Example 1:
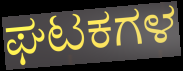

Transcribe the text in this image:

ಘಟಕಗಳ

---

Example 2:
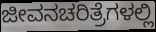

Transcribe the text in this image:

ಜೀವನಚರಿತ್ರೆಗಳಲ್ಲಿ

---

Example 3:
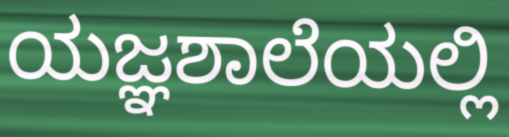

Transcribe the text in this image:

ಯಜ್ಞಶಾಲೆಯಲ್ಲಿ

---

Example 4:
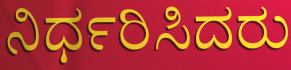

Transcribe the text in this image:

ನಿರ್ಧರಿಸಿದರು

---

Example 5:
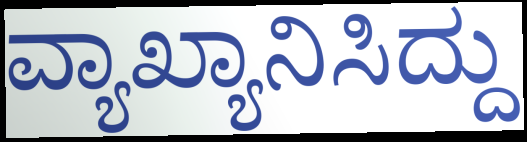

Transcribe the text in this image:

ವ್ಯಾಖ್ಯಾನಿಸಿದ್ದು